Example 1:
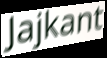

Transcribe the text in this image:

Jajkant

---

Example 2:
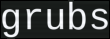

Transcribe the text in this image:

grubs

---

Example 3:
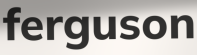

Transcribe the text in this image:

ferguson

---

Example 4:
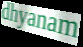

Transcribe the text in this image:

dhyanam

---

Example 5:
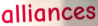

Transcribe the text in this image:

alliances